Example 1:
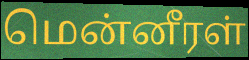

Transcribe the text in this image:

மென்னீரள்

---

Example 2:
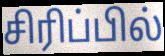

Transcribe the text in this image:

சிரிப்பில்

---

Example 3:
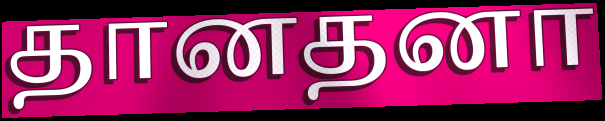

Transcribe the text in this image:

தானதனா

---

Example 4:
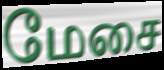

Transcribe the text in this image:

மேசை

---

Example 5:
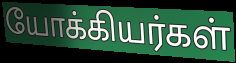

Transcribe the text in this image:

யோக்கியர்கள்